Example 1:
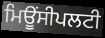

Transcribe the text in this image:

ਮਿਊਂਸੀਪਲਟੀ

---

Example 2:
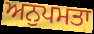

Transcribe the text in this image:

ਅਨੁਪਮਤਾ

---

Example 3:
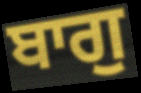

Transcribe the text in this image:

ਬਾਗੁ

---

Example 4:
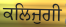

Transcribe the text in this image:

ਕਲਿਜੁਗੀ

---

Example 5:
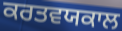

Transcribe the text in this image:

ਕਰਤਵਯਕਾਲ